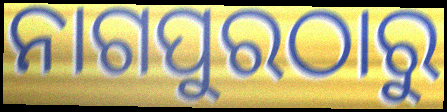
ନାଗପୁରଠାରୁ